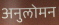
अनुलोमन